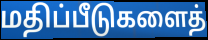
மதிப்பீடுகளைத்